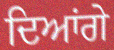
ਦਿਆਂਗੇ